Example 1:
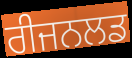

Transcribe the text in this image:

ਰੀਜਨਲਡ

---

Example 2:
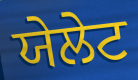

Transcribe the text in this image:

ਯੇਲੇਟ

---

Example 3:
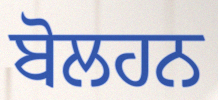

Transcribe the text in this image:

ਬੋਲਹਨ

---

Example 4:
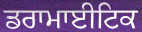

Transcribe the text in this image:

ਡਰਾਮਾਈਟਿਕ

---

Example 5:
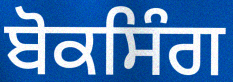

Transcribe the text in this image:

ਬੋਕਸਿੰਗ